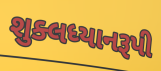
શુક્લધ્યાનરૂપી